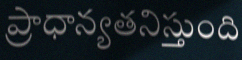
ప్రాధాన్యతనిస్తుంది